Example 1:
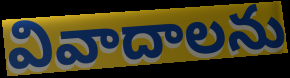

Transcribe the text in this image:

వివాదాలను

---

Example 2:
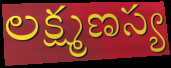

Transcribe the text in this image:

లక్ష్మణస్య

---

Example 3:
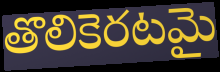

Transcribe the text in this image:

తొలికెరటమై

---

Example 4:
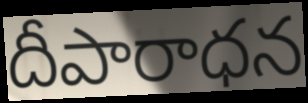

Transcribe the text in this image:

దీపారాధన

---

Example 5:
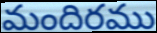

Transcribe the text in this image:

మందిరము